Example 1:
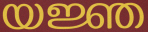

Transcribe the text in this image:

യജ്ഞ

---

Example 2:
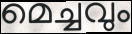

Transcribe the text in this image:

മെച്ചവും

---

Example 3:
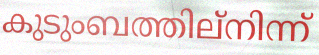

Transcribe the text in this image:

കുടുംബത്തില്നിന്ന്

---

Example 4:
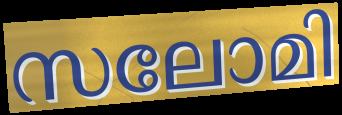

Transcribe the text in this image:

സലോമി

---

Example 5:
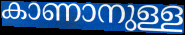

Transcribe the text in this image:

കാണാനുള്ള